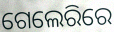
ଗେଲେରିରେ